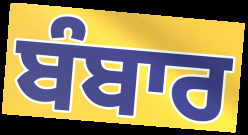
ਬੰਬਾਰ